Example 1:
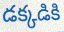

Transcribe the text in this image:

డక్కడికి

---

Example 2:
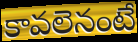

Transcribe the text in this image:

కావలెనంటే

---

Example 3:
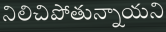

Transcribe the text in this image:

నిలిచిపోతున్నాయని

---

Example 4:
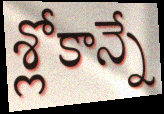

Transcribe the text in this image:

శ్లోకాన్నే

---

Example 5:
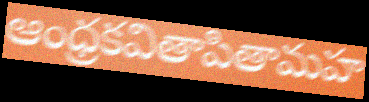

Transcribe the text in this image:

ఆంధ్రకవితాపితామహ